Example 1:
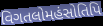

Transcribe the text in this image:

વિગતલોમહંસોતિપિ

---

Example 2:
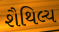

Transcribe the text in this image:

શૈથિલ્ય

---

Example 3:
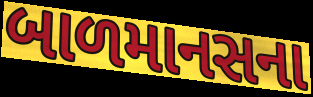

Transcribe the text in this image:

બાળમાનસના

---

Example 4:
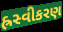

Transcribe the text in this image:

હ્રસ્વીકરણ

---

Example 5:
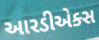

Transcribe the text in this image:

આરડીએક્સ